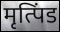
मृत्पिंड